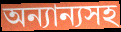
অন্যান্যসহ